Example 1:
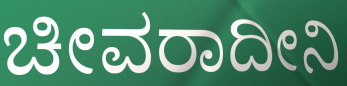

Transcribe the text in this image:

ಚೀವರಾದೀನಿ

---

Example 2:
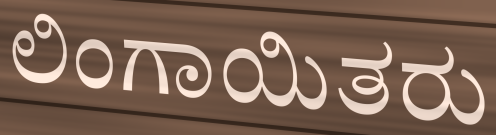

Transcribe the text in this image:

ಲಿಂಗಾಯಿತರು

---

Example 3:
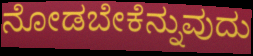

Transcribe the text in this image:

ನೋಡಬೇಕೆನ್ನುವುದು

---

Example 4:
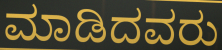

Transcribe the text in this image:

ಮಾಡಿದವರು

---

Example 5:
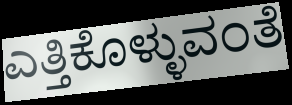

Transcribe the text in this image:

ಎತ್ತಿಕೊಳ್ಳುವಂತೆ